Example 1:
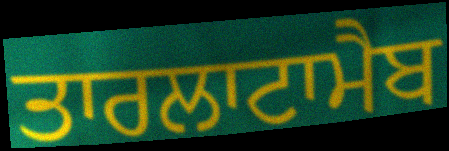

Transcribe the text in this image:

ਤਾਰਲਾਟਾਮੈਬ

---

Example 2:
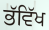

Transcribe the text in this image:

ਭੱਵਿੱਖ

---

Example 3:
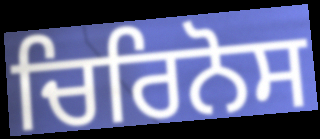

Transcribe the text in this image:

ਚਿਰਿਨੋਸ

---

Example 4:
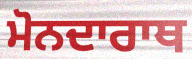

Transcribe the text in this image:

ਮੋਨਦਾਰਾਥ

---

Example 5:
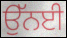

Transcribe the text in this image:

ਉੱਨਈ